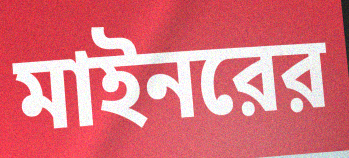
মাইনরের